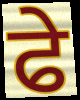
ਫੇ